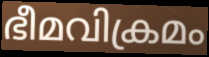
ഭീമവിക്രമം